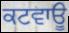
ਕਟਵਾਊ